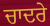
ਚਾਦਰੇ